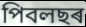
পিবলছৰ